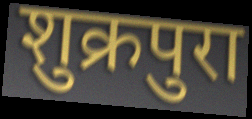
शुक्रपुरा